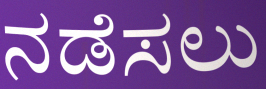
ನಡೆಸಲು